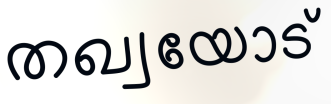
തഖ്വയോട്